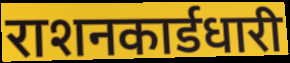
राशनकार्डधारी